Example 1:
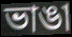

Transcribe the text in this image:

ভাঙা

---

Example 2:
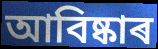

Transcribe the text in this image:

আবিষ্কাৰ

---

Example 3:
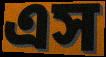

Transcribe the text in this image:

এস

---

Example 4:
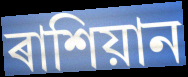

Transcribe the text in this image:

ৰাশিয়ান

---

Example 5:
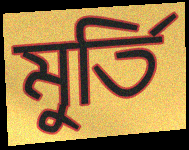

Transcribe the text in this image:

মুৰ্তি